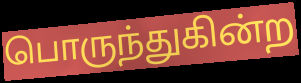
பொருந்துகின்ற